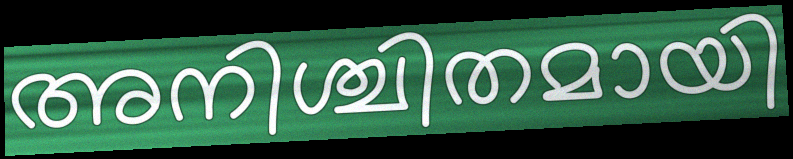
അനിശ്ചിതമായി